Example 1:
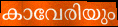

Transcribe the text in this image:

കാവേരിയും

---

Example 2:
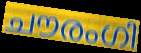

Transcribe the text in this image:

ചൗരംഗി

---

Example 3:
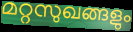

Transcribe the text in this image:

മറ്റസുഖങ്ങളും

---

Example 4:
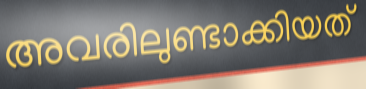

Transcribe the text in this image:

അവരിലുണ്ടാക്കിയത്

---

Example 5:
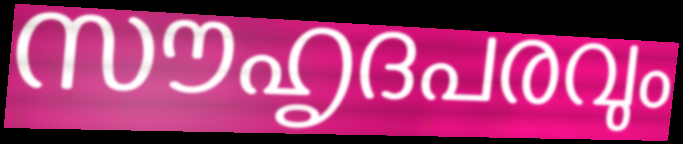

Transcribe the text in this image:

സൗഹൃദപരവും